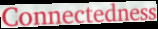
Connectedness